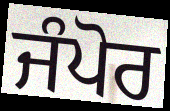
ਜੰਪੋਰ